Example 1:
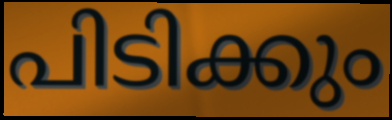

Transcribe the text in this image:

പിടിക്കും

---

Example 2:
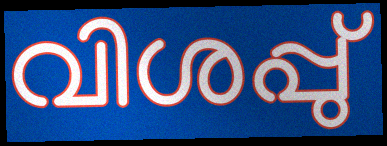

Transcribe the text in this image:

വിശപ്പു്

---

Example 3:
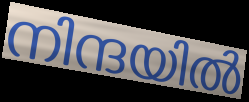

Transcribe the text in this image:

നിന്ദയിൽ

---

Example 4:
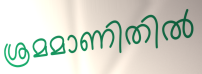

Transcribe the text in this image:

ശ്രമമാണിതിൽ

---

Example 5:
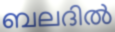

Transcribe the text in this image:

ബലദിൽ